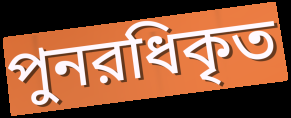
পুনরধিকৃত